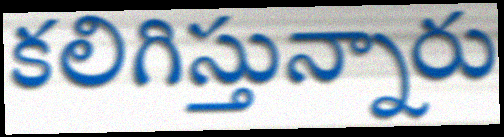
కలిగిస్తున్నారు